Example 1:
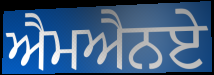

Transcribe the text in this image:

ਐਮਐਨਏ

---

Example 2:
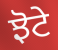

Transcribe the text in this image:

ਝੋਟੇ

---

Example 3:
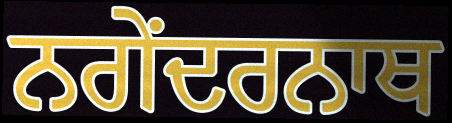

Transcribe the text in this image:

ਨਗੇਂਦਰਨਾਥ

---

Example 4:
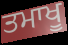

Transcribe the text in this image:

ਤਮਾਖੂ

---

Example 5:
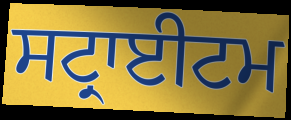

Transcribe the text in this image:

ਸਟ੍ਰਾਈਟਮ